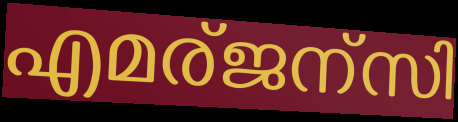
എമര്ജന്സി